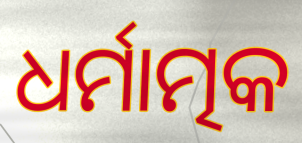
ଧର୍ମାତ୍ମକ